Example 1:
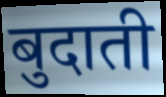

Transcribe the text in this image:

बुदाती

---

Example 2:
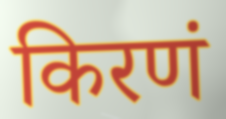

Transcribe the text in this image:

किरणं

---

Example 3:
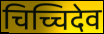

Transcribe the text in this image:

चिच्चिदेव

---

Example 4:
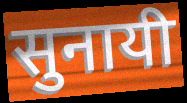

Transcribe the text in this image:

सुनायी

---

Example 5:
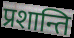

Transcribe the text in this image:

प्रशान्ति